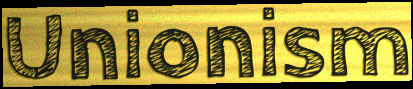
Unionism